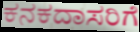
ಕನಕದಾಸರಿಗೆ